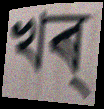
খৰ্